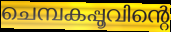
ചെമ്പകപ്പൂവിന്റെ